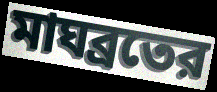
মাঘব্রতের